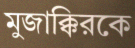
মুজাক্কিরকে